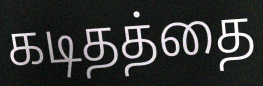
கடிதத்தை